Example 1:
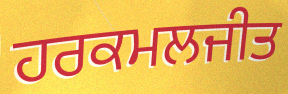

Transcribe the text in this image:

ਹਰਕਮਲਜੀਤ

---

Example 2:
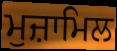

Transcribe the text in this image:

ਮੁਜ਼ਾਮਿਲ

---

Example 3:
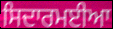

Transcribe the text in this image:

ਸਿਦਾਰਮਈਆ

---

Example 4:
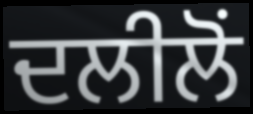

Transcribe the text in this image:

ਦਲੀਲੋਂ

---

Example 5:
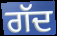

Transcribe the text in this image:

ਗੱਦ